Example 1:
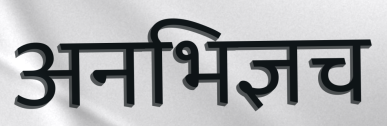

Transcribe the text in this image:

अनभिज्ञच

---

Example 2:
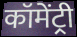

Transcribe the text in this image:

कॉमेंट्री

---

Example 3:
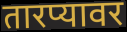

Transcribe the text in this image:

तारप्यावर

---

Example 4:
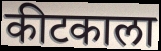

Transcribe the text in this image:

कीटकाला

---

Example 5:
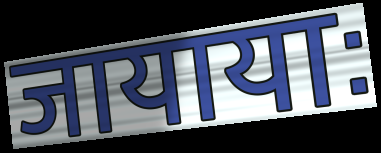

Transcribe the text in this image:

जायायाः